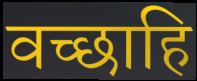
वच्छाहि